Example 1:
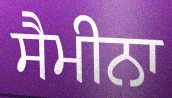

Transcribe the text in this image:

ਸੈਮੀਨਾ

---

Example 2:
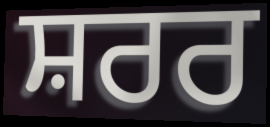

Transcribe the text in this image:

ਸ਼ਰਰ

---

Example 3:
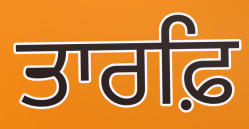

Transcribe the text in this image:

ਤਾਰਫ਼ਿ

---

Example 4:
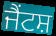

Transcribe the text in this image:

ਜੈਂਟਸ਼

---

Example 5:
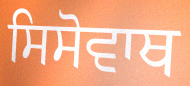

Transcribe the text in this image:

ਸਿਸੋਵਾਥ